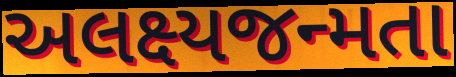
અલક્ષ્યજન્મતા